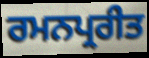
ਰਮਨਪ੍ਰਰੀਤ